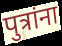
पुत्रांना